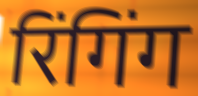
रिंगिंग